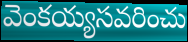
వెంకయ్యసవరించు